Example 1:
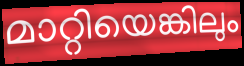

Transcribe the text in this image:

മാറ്റിയെങ്കിലും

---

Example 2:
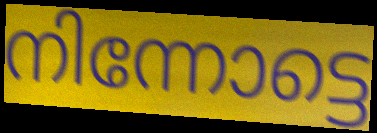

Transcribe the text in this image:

നിന്നോട്ടെ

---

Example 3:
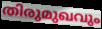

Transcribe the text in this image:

തിരുമുഖവും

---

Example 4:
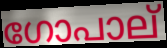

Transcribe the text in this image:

ഗോപാല്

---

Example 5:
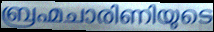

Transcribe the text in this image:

ബ്രഹ്മചാരിണിയുടെ